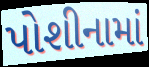
પોશીનામાં